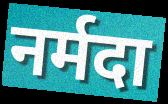
नर्मदा